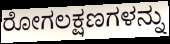
ರೋಗಲಕ್ಷಣಗಳನ್ನು